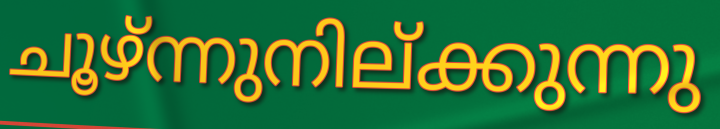
ചൂഴ്ന്നുനില്ക്കുന്നു